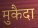
मुकैदा